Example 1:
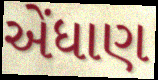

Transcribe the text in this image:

એંધાણ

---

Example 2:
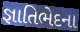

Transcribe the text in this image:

જ્ઞાતિભેદના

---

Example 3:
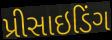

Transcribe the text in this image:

પ્રીસાઇડિંગ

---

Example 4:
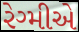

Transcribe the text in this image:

રેગ્મીએ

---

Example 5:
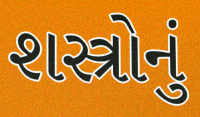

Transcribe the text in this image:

શસ્ત્રોનું